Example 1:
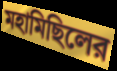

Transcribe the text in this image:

মহামিছিলের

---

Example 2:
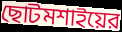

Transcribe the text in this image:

ছোটমশাইয়ের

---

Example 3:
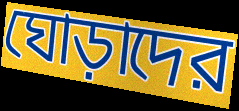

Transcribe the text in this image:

ঘোড়াদের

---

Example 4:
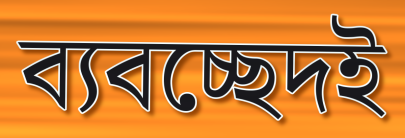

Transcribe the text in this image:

ব্যবচ্ছেদই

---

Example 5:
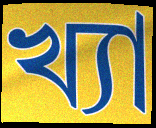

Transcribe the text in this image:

খ্যা